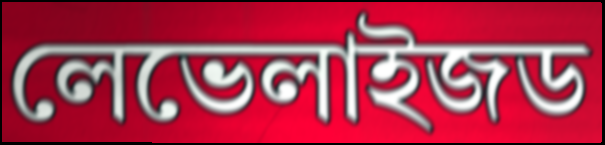
লেভেলাইজড